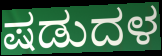
ಷಡುದಳ